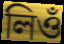
লিওঁ